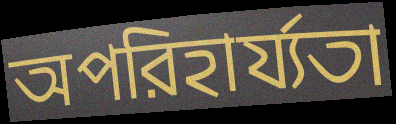
অপরিহার্য্যতা